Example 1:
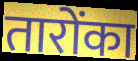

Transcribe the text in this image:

तारोंका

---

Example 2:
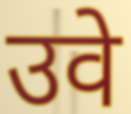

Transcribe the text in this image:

उवे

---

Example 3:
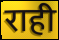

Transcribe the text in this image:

राही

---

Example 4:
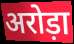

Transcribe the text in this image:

अरोड़ा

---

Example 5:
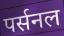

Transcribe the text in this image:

पर्सनल